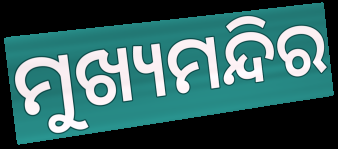
ମୁଖ୍ୟମନ୍ଦିର